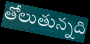
తోలుతున్నది